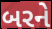
બરને